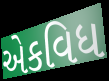
એકવિધ